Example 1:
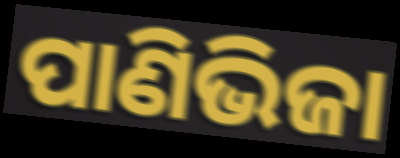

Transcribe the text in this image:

ପାଣିଭିଜା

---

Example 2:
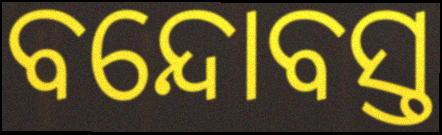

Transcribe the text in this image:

ବନ୍ଦୋବସ୍ତ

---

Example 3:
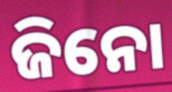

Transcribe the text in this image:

ଜିନୋ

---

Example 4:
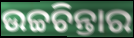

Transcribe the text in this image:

ଉଚ୍ଚଚିନ୍ତାର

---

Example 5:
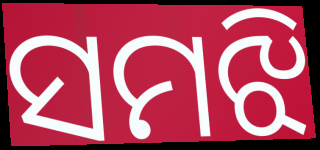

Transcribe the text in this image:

ସମଝି